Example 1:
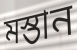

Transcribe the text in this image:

মস্তান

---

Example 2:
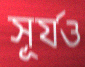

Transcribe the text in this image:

সূর্যও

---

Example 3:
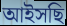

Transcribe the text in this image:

আইসছি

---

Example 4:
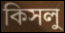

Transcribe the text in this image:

কিসলু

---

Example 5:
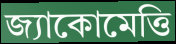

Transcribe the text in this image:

জ্যাকোমেত্তি